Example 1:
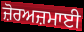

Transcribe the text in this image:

ਜ਼ੋਰਅਜ਼ਮਾਈ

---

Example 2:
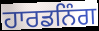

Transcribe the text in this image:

ਹਾਰਡਨਿੰਗ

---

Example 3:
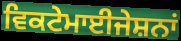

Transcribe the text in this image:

ਵਿਕਟੇਮਾਈਜੇਸ਼ਨਾਂ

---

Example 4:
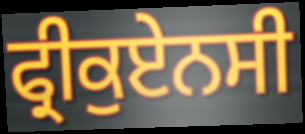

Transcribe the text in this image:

ਫ੍ਰੀਕੁਏਨਸੀ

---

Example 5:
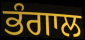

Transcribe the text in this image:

ਭੰਗਾਲ